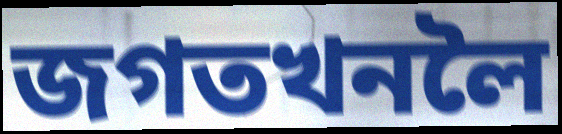
জগতখনলৈ